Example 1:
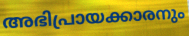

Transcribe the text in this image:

അഭിപ്രായക്കാരനും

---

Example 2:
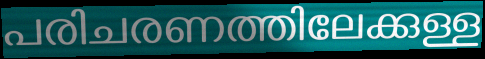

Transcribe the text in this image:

പരിചരണത്തിലേക്കുള്ള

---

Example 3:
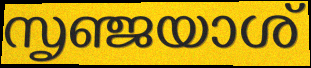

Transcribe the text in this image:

സൃഞ്ജയാശ്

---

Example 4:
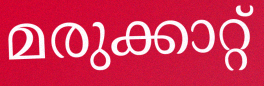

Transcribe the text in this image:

മരുക്കാറ്റ്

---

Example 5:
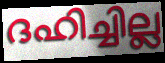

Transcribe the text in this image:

ദഹിച്ചില്ല